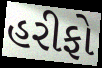
હરીફો